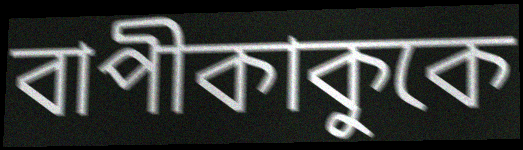
বাপীকাকুকে